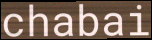
chabai